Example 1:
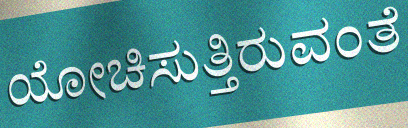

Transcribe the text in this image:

ಯೋಚಿಸುತ್ತಿರುವಂತೆ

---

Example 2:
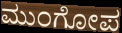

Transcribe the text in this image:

ಮುಂಗೋಪ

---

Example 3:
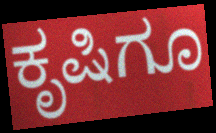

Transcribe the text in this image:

ಕೃಷಿಗೂ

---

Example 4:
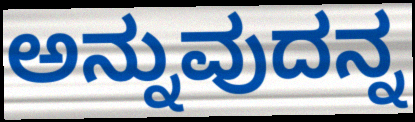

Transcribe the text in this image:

ಅನ್ನುವುದನ್ನ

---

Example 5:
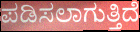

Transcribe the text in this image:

ಪಡಿಸಲಾಗುತ್ತಿದೆ